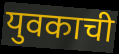
युवकाची